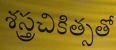
శస్త్రచికిత్సతో